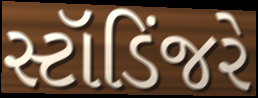
સ્ટૉડિંજરે